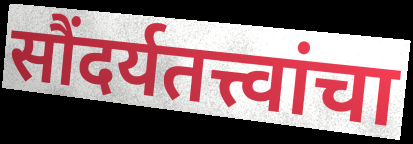
सौंदर्यतत्त्वांचा